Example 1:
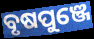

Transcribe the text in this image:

ବୃଷପୁଞ୍ଜେ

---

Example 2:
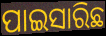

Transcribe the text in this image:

ପାଇସାରିଛ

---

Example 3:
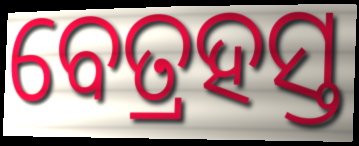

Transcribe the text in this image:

ବେତ୍ରହସ୍ତ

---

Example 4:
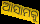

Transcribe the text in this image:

ଆସାମକୁ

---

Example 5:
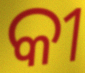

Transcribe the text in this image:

କୀ